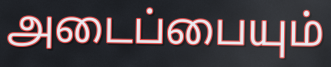
அடைப்பையும்